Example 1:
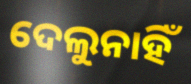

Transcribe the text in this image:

ଦେଲୁନାହିଁ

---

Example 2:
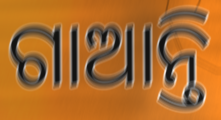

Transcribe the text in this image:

ଗାଆନ୍ତି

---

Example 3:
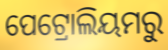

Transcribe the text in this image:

ପେଟ୍ରୋଲିୟମରୁ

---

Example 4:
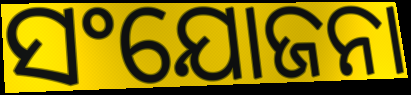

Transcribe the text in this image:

ସଂଯୋଜନା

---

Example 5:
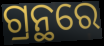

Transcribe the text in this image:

ଗ୍ରନ୍ଥରେ